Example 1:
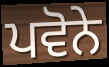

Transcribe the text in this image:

ਪਵੋਨੇ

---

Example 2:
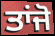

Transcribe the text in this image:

ਤਾਂਜੋ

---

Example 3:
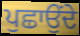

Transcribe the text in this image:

ਪੁਛਾਉਂਦੇ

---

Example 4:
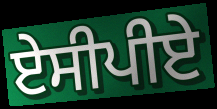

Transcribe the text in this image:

ਏਸੀਪੀਏ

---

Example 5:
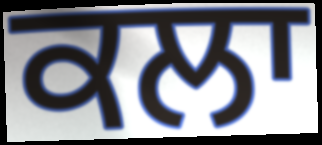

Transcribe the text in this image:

ਕਲਾ